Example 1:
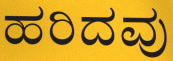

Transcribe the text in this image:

ಹರಿದವು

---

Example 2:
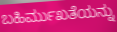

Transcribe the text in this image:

ಬಹಿರ್ಮುಖತೆಯನ್ನು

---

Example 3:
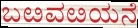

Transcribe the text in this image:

ಬೞವೞಯನೆ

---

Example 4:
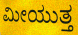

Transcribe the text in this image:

ಮೀಯುತ್ತ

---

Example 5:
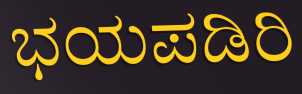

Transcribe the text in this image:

ಭಯಪಡಿರಿ